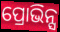
ପ୍ରୋଭିନ୍ସ